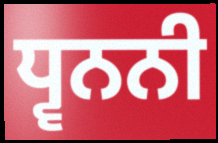
ਧ੍ਵਨਨੀ